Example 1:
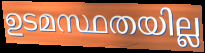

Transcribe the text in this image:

ഉടമസ്ഥതയില്ല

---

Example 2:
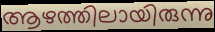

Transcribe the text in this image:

ആഴത്തിലായിരുന്നു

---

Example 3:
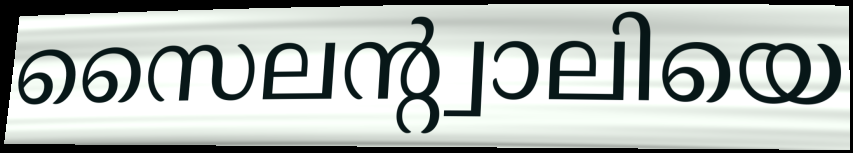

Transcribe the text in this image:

സൈലന്റ്വാലിയെ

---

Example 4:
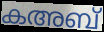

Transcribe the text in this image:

കഅബ്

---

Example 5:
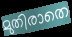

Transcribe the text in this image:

മുതിരാതെ